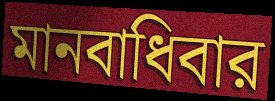
মানবাধিবার